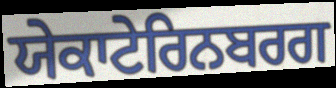
ਯੇਕਾਟੇਰਿਨਬਰਗ